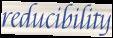
reducibility